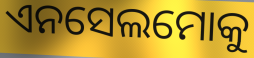
ଏନସେଲମୋକୁ